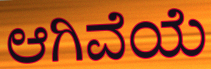
ಆಗಿವೆಯೆ